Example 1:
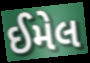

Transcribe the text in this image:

ઈમેલ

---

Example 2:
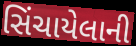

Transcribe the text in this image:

સિંચાયેલાની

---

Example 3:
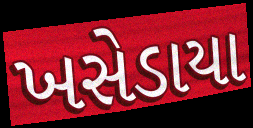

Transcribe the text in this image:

ખસેડાયા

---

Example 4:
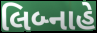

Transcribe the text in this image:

લિબ્નાહે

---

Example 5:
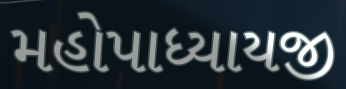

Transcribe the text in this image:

મહોપાધ્યાયજી